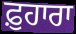
ਫ਼ੁਹਾਰਾ